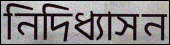
নিদিধ্যাসন